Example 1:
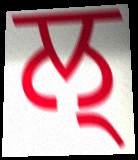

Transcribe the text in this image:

ਲ੍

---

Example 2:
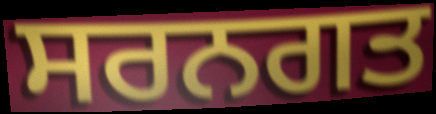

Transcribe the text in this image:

ਸਰਨਗਤ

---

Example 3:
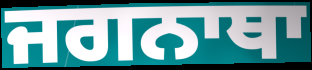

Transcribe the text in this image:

ਜਗਨਾਥਾ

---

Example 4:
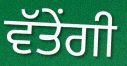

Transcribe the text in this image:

ਵੱਤੇਂਗੀ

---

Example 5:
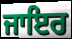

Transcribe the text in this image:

ਜਾਇਰ